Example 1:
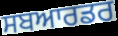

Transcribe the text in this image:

ਸਬਆਰਡਰ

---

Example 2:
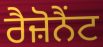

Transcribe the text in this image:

ਰੈਜ਼ੋਨੈਂਟ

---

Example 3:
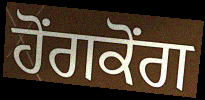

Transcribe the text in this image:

ਹੋਂਗਕੋਂਗ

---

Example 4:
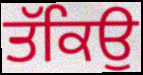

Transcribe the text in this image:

ਤੱਕਿਉ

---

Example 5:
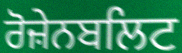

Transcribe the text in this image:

ਰੋਜ਼ੇਨਬਲਿਟ